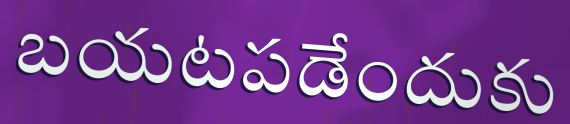
బయటపడేందుకు